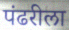
पंढरीला